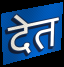
देत